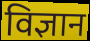
विज्ञान